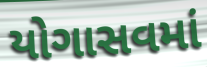
યોગાસવમાં